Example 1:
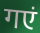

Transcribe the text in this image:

गएं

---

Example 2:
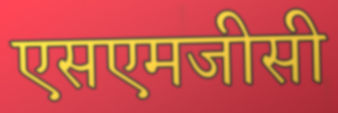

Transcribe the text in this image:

एसएमजीसी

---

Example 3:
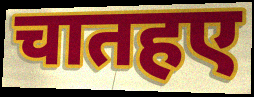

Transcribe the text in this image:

चातहए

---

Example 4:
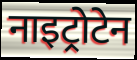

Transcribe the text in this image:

नाइट्रोटेन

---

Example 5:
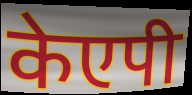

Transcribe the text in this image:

केएपी